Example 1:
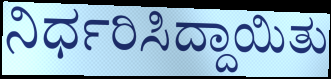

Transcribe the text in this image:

ನಿರ್ಧರಿಸಿದ್ದಾಯಿತು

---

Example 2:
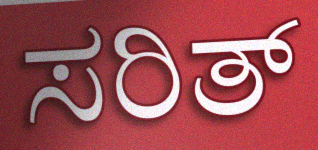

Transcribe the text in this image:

ಸರಿತ್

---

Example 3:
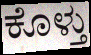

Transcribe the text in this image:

ಕೊಳ್ತು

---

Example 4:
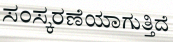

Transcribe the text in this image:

ಸಂಸ್ಕರಣೆಯಾಗುತ್ತಿದೆ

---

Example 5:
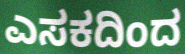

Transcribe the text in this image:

ಎಸಕದಿಂದ